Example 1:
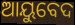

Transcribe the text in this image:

ଆୟୁବେଦ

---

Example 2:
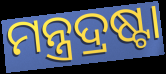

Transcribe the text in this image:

ମନ୍ତ୍ରଦ୍ରଷ୍ଟା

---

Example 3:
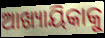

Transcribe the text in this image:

ଆଖ୍ୟାୟିକାକୁ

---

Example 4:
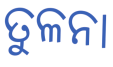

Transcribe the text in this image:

ତୁଳନା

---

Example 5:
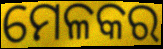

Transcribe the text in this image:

ମେଳକର